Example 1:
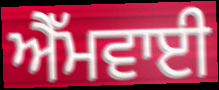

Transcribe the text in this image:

ਐੱਮਵਾਈ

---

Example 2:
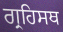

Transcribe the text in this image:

ਗ੍ਰਹਿਸਥ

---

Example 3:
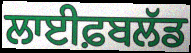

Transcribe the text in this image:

ਲਾਈਫ਼ਬਲੱਡ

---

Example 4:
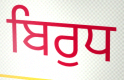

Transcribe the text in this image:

ਬਿਰੁਧ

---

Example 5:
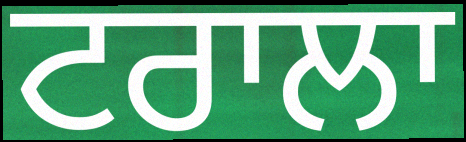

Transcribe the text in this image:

ਟਰਾਲਾ